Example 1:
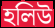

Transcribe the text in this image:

হলিউ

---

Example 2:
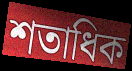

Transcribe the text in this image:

শতাধিক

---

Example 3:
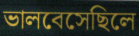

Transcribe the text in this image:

ভালবেসেছিলে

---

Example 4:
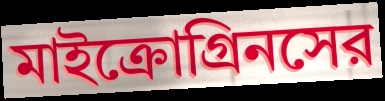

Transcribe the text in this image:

মাইক্রোগ্রিনসের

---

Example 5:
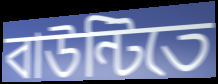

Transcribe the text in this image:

বাউন্টিতে